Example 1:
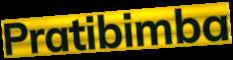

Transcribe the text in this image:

Pratibimba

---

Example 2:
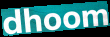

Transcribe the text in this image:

dhoom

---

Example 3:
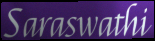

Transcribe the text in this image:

Saraswathi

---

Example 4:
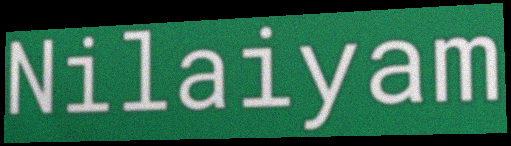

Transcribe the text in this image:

Nilaiyam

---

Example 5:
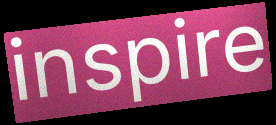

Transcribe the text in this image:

inspire